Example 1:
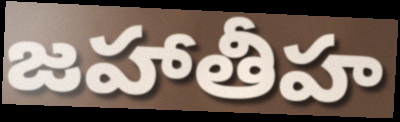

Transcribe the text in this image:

జహాతీహ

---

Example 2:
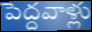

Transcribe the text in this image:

పెద్దవాళ్లు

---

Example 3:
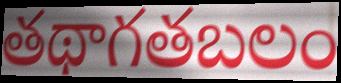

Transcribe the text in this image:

తథాగతబలం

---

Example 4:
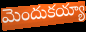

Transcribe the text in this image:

మెందుకయ్యా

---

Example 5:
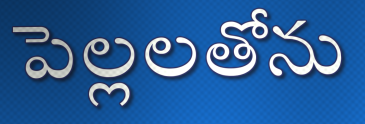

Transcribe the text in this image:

పెల్లలతోను